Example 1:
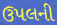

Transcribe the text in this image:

ઉપલની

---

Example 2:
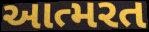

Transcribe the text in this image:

આત્મરત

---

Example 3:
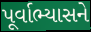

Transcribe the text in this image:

પૂર્વાભ્યાસને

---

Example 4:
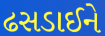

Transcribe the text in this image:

ઢસડાઈને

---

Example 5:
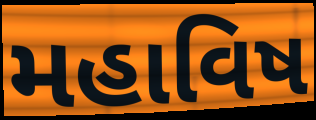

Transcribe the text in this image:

મહાવિષ